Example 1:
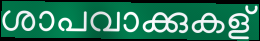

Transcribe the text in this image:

ശാപവാക്കുകള്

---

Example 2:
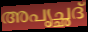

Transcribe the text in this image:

അപൃച്ഛദ്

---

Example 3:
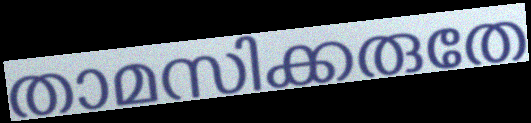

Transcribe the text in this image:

താമസിക്കരുതേ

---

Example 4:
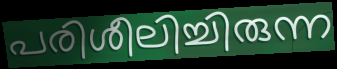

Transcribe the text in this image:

പരിശീലിച്ചിരുന്ന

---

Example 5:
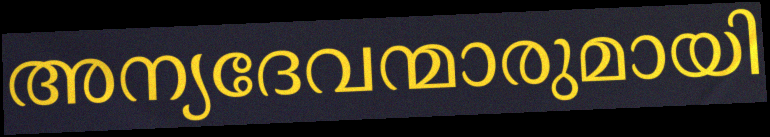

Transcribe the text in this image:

അന്യദേവന്മാരുമായി